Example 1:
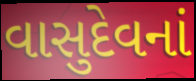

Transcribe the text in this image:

વાસુદેવનાં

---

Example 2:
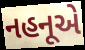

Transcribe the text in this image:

નહનૂએ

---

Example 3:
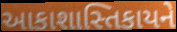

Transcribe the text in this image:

આકાશાસ્તિકાયને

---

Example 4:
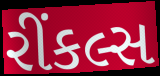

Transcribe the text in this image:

રીંકલ્સ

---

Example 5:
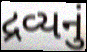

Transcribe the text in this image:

દ્રવ્યનું